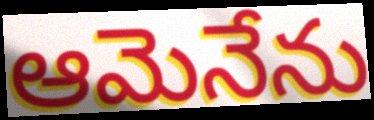
ఆమెనేను